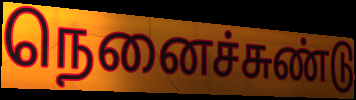
நெனைச்சுண்டு